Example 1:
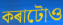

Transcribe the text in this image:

কৰাটোও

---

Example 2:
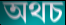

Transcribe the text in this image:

অথচ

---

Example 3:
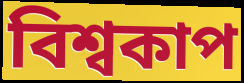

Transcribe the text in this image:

বিশ্বকাপ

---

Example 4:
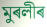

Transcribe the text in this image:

মুৰলীৰ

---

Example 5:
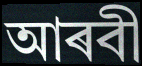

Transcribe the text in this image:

আৰবী